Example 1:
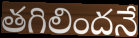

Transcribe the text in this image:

తగిలిందనే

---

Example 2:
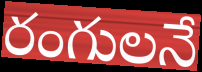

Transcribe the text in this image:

రంగులనే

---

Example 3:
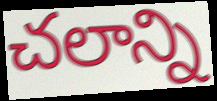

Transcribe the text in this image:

చలాన్ని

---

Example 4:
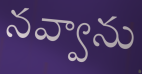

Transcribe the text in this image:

నవ్వాను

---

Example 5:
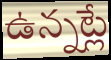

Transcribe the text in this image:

ఉన్నట్లే